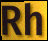
Rh